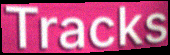
Tracks